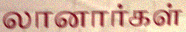
லானார்கள்